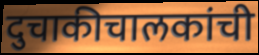
दुचाकीचालकांची